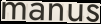
manus